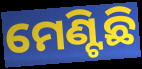
ମେଣ୍ଟିଛି